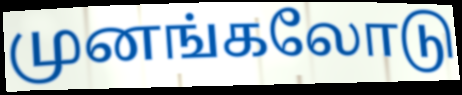
முனங்கலோடு